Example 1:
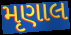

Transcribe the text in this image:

મૃણાલ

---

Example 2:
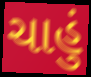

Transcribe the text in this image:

ચાહું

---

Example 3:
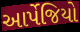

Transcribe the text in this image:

આર્પેજિયો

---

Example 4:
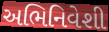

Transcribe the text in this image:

અભિનિવેશી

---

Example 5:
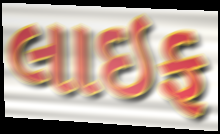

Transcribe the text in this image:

લાઇફ